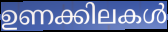
ഉണക്കിലകൾ